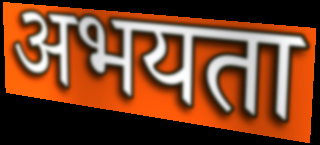
अभयता